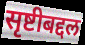
सृष्टीबद्दल